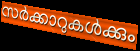
സർക്കാറുകൾക്കും